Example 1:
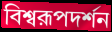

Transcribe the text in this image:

বিশ্বরূপদর্শন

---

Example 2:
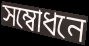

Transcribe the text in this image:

সম্বোধনে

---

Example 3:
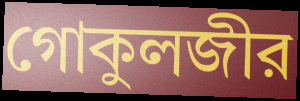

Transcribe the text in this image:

গোকুলজীর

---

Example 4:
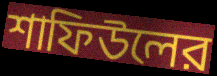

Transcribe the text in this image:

শাফিউলের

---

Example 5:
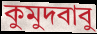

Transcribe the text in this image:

কুমুদবাবু